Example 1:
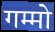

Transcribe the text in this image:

गम्मो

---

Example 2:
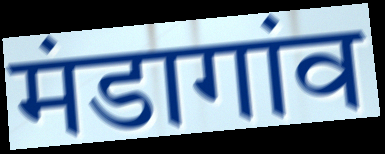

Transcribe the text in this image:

मंडागांव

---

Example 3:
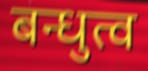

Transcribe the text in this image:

बन्धुत्व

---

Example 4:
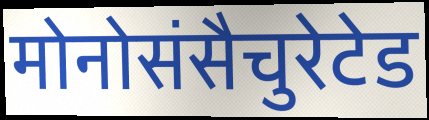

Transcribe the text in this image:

मोनोसंसैचुरेटेड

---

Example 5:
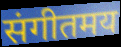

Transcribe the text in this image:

संगीतमय